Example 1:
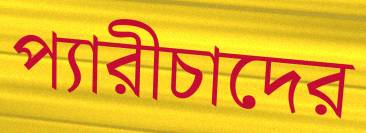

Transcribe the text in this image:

প্যারীচাদের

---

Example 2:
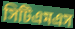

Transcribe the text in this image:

সিটিএমএস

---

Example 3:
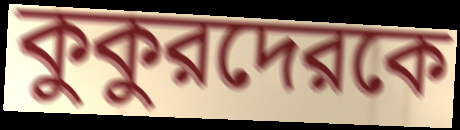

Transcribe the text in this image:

কুকুরদেরকে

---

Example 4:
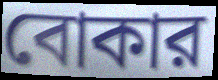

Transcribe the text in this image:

বোকার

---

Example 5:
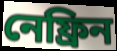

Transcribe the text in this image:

নেফ্রিন